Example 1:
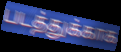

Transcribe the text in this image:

படத்துக்காக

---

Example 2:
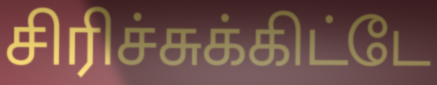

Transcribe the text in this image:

சிரிச்சுக்கிட்டே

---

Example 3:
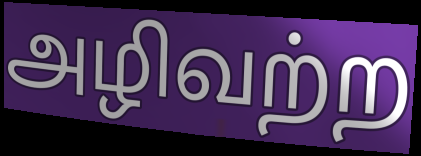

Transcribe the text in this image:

அழிவற்ற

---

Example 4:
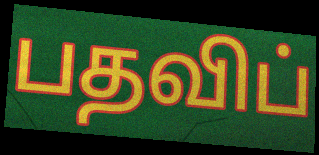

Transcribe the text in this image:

பதவிப்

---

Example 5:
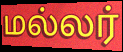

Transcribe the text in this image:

மல்லர்